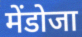
मेंडोजा